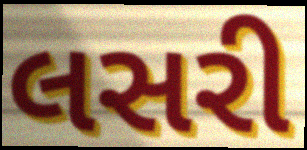
લસરી